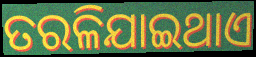
ତରଳିଯାଇଥାଏ